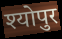
श्योपुर